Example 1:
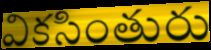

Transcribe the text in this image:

వికసింతురు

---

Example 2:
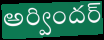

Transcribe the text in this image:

అర్విందర్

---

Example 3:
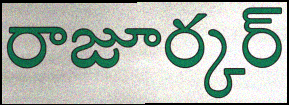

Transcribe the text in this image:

రాజూర్కర్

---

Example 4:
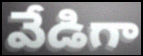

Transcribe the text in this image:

వేడిగా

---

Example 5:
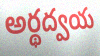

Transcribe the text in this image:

అర్థద్వయ